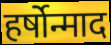
हर्षोन्माद